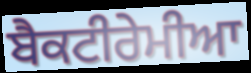
ਬੈਕਟੀਰੇਮੀਆ